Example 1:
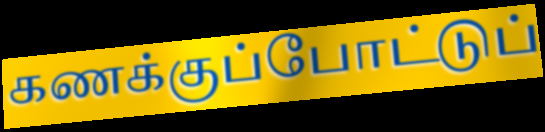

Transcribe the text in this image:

கணக்குப்போட்டுப்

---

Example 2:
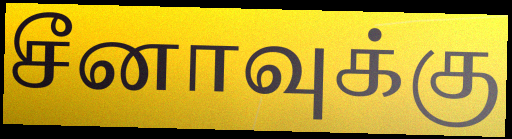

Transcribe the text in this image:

சீனாவுக்கு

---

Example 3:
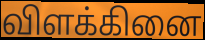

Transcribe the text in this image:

விளக்கினை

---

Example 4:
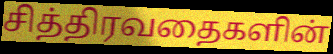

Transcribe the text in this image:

சித்திரவதைகளின்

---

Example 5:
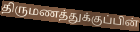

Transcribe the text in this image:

திருமணத்துக்குப்பின்